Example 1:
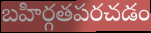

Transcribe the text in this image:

బహిర్గతపరచడం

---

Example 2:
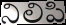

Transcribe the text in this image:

నిలిపి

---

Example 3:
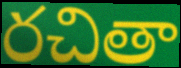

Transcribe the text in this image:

రచితా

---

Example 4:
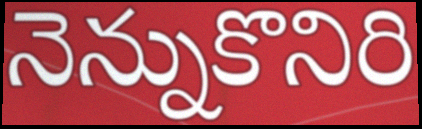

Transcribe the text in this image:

నెన్నుకొనిరి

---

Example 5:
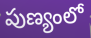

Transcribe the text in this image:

పుణ్యంలో